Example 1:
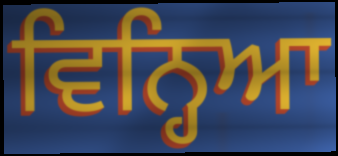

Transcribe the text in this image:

ਵਿਨ੍ਹਿਆ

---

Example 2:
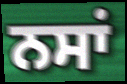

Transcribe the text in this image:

ਨਸਾਂ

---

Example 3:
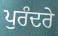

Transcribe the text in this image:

ਪੁਰੰਦਰੇ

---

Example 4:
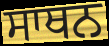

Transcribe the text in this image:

ਸਾਥਨ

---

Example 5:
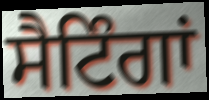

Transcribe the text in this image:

ਸੈਟਿੰਗਾਂ